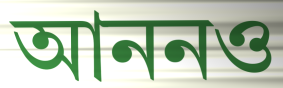
আননও